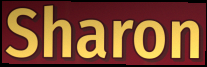
Sharon